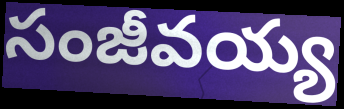
సంజీవయ్య